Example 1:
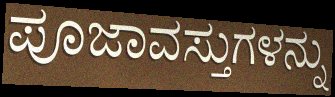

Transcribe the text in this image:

ಪೂಜಾವಸ್ತುಗಳನ್ನು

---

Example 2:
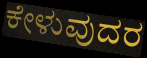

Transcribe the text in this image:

ಕೇಳುವುದರ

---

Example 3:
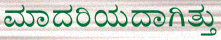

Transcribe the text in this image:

ಮಾದರಿಯದಾಗಿತ್ತು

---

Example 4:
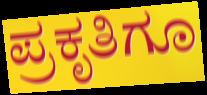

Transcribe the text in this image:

ಪ್ರಕೃತಿಗೂ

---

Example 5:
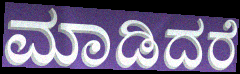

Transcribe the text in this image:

ಮಾಡಿದರೆ